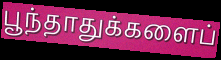
பூந்தாதுக்களைப்